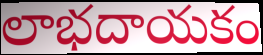
లాభదాయకం